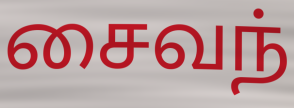
சைவந்